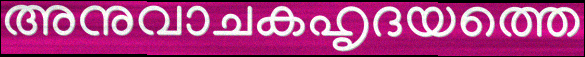
അനുവാചകഹൃദയത്തെ